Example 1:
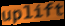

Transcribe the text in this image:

uplift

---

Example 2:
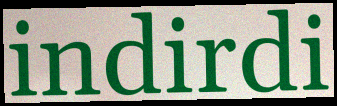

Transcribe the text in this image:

indirdi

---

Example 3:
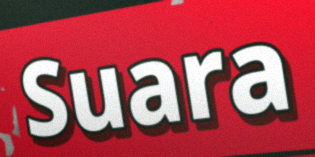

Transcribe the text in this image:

Suara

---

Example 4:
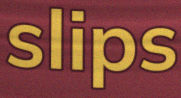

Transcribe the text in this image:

slips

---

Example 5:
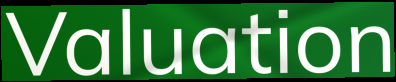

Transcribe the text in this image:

Valuation